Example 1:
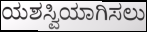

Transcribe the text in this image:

ಯಶಸ್ವಿಯಾಗಿಸಲು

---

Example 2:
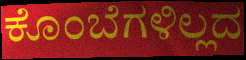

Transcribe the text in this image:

ಕೊಂಬೆಗಳಿಲ್ಲದ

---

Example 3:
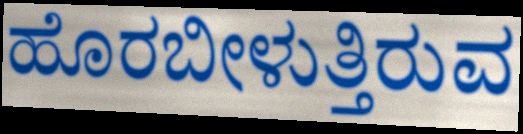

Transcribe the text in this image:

ಹೊರಬೀಳುತ್ತಿರುವ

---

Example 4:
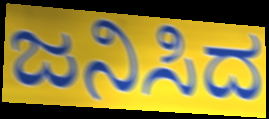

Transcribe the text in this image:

ಜನಿಸಿದ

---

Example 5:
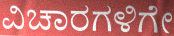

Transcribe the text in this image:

ವಿಚಾರಗಳಿಗೇ